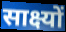
साक्ष्यों